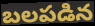
బలపడిన